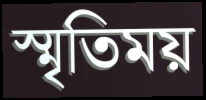
স্মৃতিময়